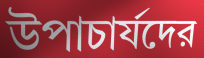
উপাচার্যদের